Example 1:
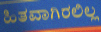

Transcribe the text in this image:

ಹಿತವಾಗಿರಲಿಲ್ಲ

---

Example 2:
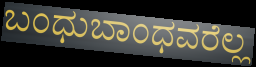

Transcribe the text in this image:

ಬಂಧುಬಾಂಧವರೆಲ್ಲ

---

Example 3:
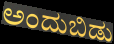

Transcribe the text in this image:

ಅಂದುಬಿಡು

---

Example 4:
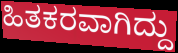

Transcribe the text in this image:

ಹಿತಕರವಾಗಿದ್ದು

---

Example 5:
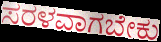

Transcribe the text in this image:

ಸರಳವಾಗಬೇಕು